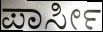
ಪಾರ್ಸೀ